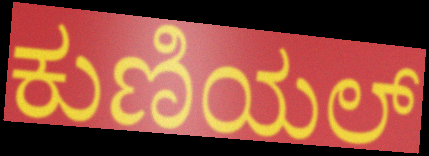
ಕುಣಿಯಲ್